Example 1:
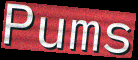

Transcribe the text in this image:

Pums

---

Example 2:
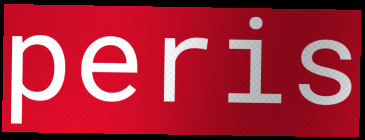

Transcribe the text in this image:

peris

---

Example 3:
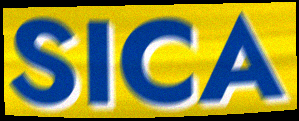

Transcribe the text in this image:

SICA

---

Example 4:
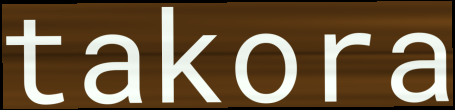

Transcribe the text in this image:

takora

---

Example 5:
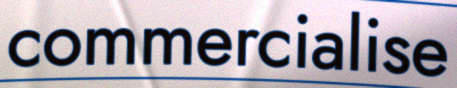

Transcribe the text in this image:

commercialise